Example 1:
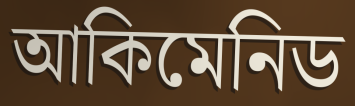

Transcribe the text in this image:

আকিমেনিড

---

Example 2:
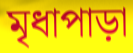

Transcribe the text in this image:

মৃধাপাড়া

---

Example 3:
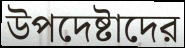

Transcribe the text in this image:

উপদেষ্টাদের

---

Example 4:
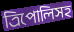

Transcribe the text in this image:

ত্রিপোলিসহ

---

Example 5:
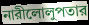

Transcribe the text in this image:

নারীলোলুপতার